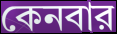
কেনবার